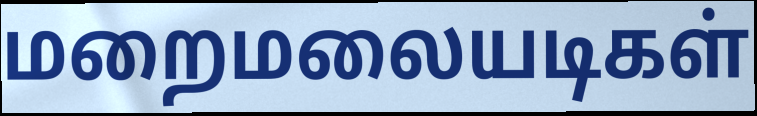
மறைமலையடிகள்